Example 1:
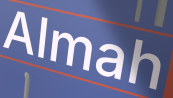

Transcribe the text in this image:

Almah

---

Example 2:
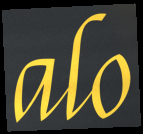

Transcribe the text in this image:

alo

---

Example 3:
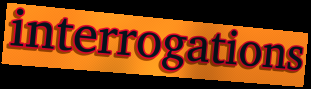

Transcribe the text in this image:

interrogations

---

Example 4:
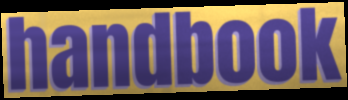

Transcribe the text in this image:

handbook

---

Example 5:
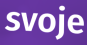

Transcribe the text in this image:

svoje